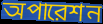
অপারেশন